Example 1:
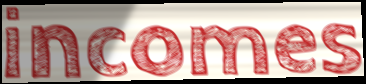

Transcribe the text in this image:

incomes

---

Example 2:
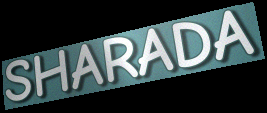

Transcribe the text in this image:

SHARADA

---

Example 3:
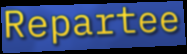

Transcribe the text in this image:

Repartee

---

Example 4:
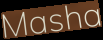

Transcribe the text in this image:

Masha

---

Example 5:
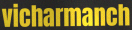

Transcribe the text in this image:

vicharmanch